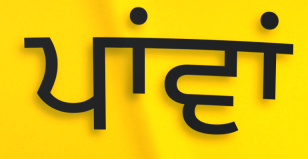
ਪਾਂਵਾਂ